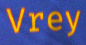
Vrey